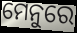
ମେନୁରେ